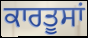
ਕਾਰਤੂਸਾਂ